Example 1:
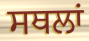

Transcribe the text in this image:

ਸਥਲਾਂ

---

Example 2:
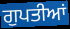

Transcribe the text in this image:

ਗੁਪਤੀਆਂ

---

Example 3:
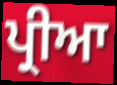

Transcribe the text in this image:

ਪ੍ਰੀਆ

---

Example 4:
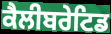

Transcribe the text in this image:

ਕੈਲੀਬਰੇਟਿਡ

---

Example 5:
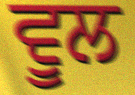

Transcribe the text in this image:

ਵੂਲ